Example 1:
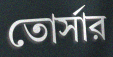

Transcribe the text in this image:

তোর্সার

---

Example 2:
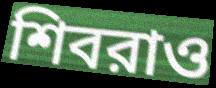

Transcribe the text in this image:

শিবরাও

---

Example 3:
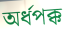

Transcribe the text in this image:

অর্ধপক্ক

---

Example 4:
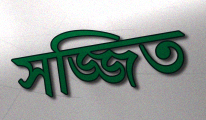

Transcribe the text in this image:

সজ্জিত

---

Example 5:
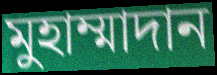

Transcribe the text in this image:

মুহাম্মাদান